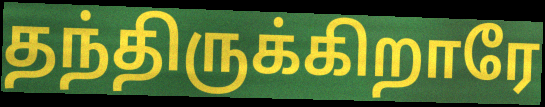
தந்திருக்கிறாரே